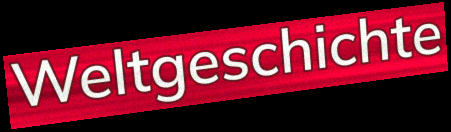
Weltgeschichte